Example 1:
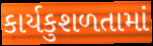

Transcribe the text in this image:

કાર્યકુશળતામાં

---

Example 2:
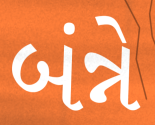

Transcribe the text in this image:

બંન્ને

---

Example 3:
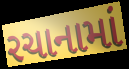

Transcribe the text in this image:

રચાનામાં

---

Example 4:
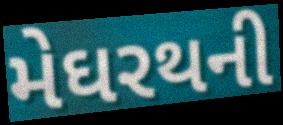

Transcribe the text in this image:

મેઘરથની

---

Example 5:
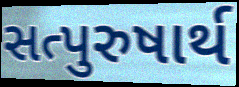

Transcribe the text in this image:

સત્પુરુષાર્થ